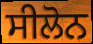
ਸੀਲੋਨ